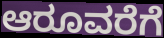
ಆರೂವರೆಗೆ